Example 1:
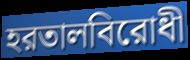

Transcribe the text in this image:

হরতালবিরোধী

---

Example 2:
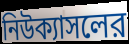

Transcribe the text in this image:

নিউক্যাসলের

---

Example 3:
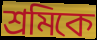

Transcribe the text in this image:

শ্রমিকে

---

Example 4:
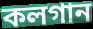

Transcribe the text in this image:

কলগান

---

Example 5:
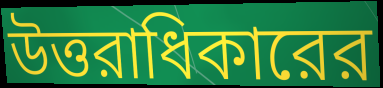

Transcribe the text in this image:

উত্তরাধিকারের